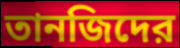
তানজিদের